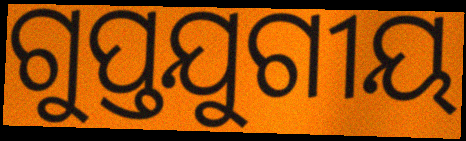
ଗୁପ୍ତଯୁଗୀୟ